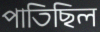
পাতিছিল